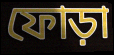
ফোড়া